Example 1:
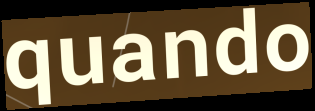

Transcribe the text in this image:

quando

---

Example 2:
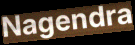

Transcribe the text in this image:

Nagendra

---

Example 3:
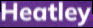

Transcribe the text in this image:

Heatley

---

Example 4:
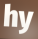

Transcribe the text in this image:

hy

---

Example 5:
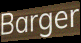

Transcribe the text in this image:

Barger